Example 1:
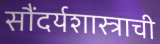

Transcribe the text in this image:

सौंदर्यशास्त्राची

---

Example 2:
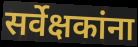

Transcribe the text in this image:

सर्वेक्षकांना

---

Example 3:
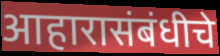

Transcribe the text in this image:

आहारासंबंधीचे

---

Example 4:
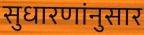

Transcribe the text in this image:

सुधारणांनुसार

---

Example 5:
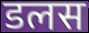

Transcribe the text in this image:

डलस